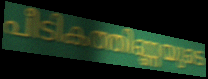
പീടികത്തിണ്ണയുടെ